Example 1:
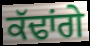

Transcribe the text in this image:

ਕੱਢਾਂਗੇ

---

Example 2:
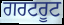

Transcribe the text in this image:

ਗਰਟਰੂਟ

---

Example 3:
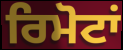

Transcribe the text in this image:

ਰਿਮੋਟਾਂ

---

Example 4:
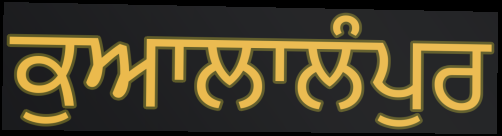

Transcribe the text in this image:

ਕੁਆਲਾਲੰਪੁਰ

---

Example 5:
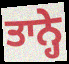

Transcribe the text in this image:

ਤਾਨ੍ਹੇ